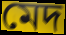
মেদ